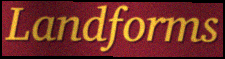
Landforms